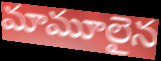
మామూలైన